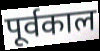
पूर्वकाल